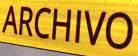
ARCHIVO